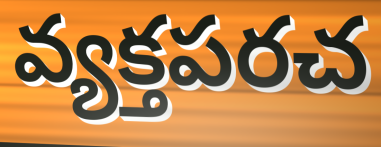
వ్యక్తపరచ